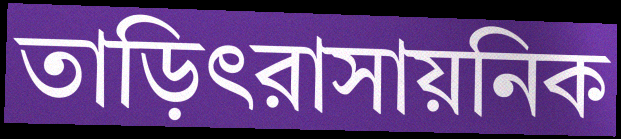
তাড়িৎরাসায়নিক